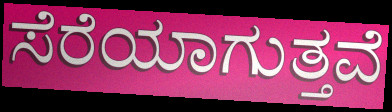
ಸೆರೆಯಾಗುತ್ತವೆ